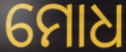
ମୋଧ